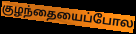
குழந்தையைப்போல